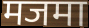
मजमा